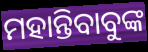
ମହାନ୍ତିବାବୁଙ୍କ